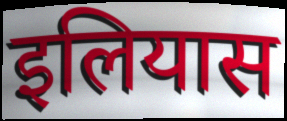
इलियास